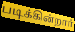
படிக்கின்றார்